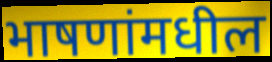
भाषणांमधील